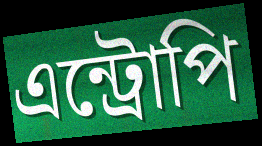
এন্ট্রোপি